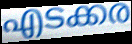
എടക്കര